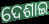
ଦେଶାଇ